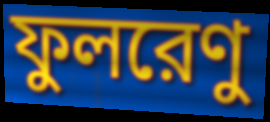
ফুলরেণু